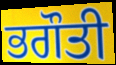
ਭਗੌਤੀ